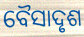
ବୈସାଦୃଶ